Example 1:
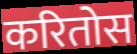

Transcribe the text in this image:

करितोस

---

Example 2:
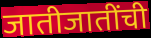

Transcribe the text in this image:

जातीजातींची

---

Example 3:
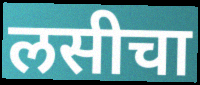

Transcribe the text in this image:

लसीचा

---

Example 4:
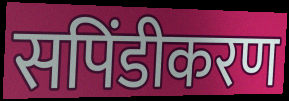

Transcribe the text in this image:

सपिंडीकरण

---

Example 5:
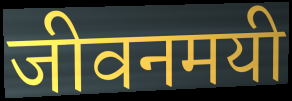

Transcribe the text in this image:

जीवनमयी